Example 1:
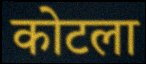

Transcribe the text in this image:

कोटला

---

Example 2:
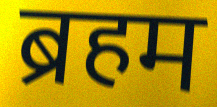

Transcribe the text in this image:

ब्रहम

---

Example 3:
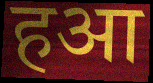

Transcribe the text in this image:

हआ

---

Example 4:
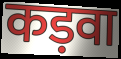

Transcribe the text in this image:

कड़वा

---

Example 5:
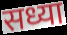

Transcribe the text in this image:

सध्या